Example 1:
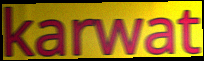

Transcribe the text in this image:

karwat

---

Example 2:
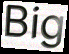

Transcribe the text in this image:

Big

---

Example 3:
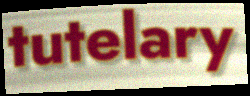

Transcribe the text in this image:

tutelary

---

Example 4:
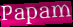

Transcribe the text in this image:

Papam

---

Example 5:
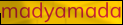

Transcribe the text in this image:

madyamada